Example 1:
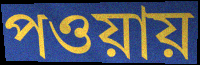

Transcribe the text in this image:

পওয়ায়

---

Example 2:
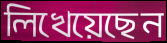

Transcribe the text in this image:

লিখেয়েছেন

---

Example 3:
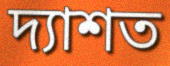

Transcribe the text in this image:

দ্যাশত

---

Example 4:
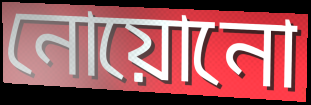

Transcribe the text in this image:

নোয়োনো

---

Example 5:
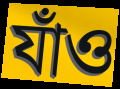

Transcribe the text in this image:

যাঁও